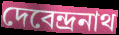
দেবেন্দ্রনাথ